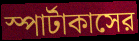
স্পার্টাকাসের